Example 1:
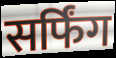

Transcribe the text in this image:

सर्फिंग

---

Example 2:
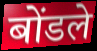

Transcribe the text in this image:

बोंडले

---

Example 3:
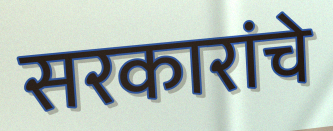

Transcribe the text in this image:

सरकारांचे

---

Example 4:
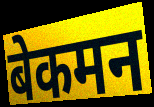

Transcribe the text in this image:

बेकमन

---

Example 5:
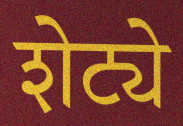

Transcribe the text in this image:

शेट्ये